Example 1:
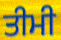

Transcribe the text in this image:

ਤੀਮੀ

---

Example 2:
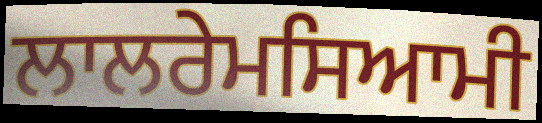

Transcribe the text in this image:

ਲਾਲਰੇਮਸਿਆਮੀ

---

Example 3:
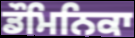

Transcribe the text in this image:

ਡੌਮਿਨਿਕਾ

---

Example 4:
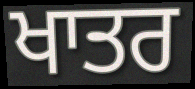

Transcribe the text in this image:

ਖਾਤਰ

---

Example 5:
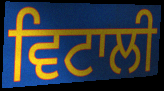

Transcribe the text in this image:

ਵਿਟਾਲੀ